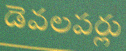
డెవలపర్లు